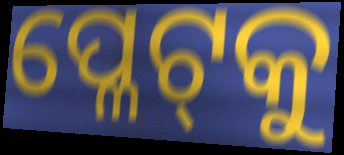
ପ୍ଳେଟ୍‌କୁ